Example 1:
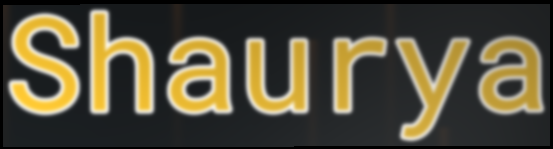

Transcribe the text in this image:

Shaurya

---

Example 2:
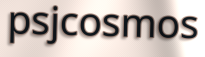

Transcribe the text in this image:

psjcosmos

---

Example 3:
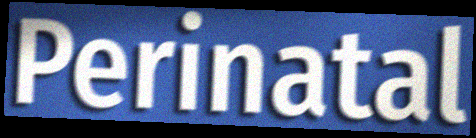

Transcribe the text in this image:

Perinatal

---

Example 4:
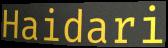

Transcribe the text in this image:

Haidari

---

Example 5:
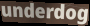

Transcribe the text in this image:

underdog